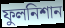
ফুলনিশান